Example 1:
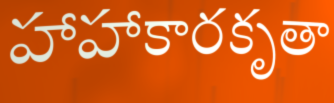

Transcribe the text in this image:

హాహాకారకృతా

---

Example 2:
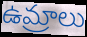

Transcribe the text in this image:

ఉమ్రాలు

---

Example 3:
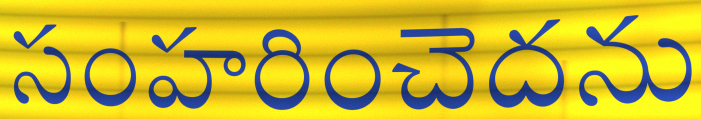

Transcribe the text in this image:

సంహరించెదను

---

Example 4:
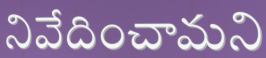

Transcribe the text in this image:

నివేదించామని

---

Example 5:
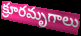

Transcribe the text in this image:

క్రూరమృగాలు